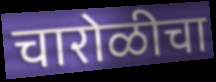
चारोळीचा